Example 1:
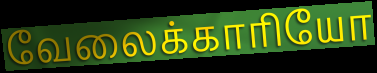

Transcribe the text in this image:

வேலைக்காரியோ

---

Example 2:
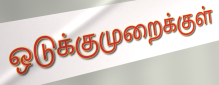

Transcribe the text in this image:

ஒடுக்குமுறைக்குள்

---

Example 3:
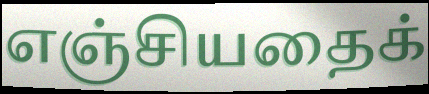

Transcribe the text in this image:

எஞ்சியதைக்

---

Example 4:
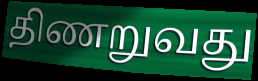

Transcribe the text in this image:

திணறுவது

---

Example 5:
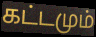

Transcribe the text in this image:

கட்டமும்